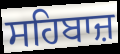
ਸਹਿਬਾਜ਼